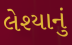
લેશ્યાનું